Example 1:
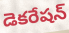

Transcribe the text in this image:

డెకరేషన్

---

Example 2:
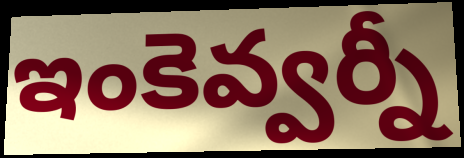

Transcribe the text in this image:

ఇంకెవ్వర్నీ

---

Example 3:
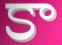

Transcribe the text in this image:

కా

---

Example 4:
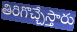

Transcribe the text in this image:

తిరిగొచ్చేస్తారు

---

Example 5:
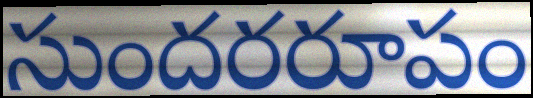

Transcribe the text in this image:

సుందరరూపం